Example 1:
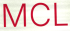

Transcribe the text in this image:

MCL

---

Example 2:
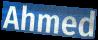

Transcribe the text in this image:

Ahmed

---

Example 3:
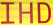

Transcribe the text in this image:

IHD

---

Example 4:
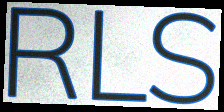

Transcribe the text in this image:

RLS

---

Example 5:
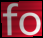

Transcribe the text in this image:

fo